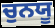
ਚੁਨਯੂ